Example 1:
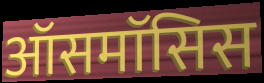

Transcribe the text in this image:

ऑसमॉसिस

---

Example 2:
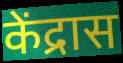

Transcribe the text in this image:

केंद्रास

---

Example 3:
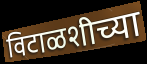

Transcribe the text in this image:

विटाळशीच्या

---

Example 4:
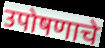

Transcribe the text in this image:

उपोषणाचे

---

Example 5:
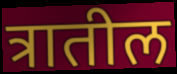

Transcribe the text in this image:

त्रातील